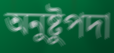
অনুষ্টুপদা